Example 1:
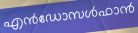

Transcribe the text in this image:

എൻഡോസൾഫാൻ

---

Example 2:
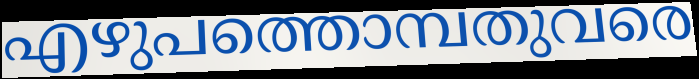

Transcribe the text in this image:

എഴുപത്തൊമ്പതുവരെ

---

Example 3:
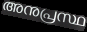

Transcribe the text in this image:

അനുപ്രസ്ഥ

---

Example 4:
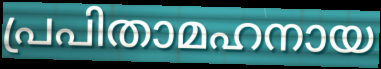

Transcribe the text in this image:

പ്രപിതാമഹനായ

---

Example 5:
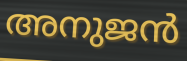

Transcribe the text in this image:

അനുജൻ